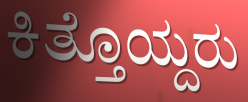
ಕಿತ್ತೊಯ್ದರು